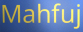
Mahfuj